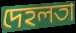
দেহলতা